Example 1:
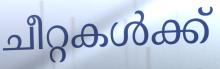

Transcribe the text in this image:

ചീറ്റകൾക്ക്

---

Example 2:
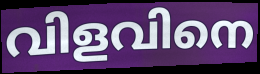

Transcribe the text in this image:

വിളവിനെ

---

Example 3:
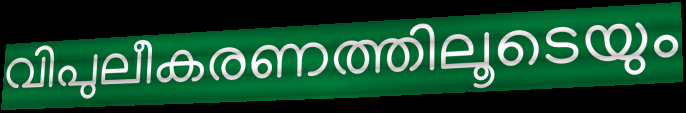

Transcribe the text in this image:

വിപുലീകരണത്തിലൂടെയും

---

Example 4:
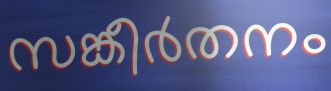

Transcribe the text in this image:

സങ്കീർതനം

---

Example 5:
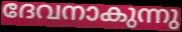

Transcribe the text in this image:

ദേവനാകുന്നു